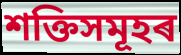
শক্তিসমূহৰ